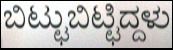
ಬಿಟ್ಟುಬಿಟ್ಟಿದ್ದಳು